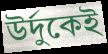
উর্দুকেই